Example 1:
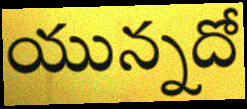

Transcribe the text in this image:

యున్నదో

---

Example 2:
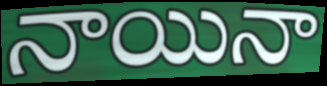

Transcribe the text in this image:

నాయినా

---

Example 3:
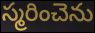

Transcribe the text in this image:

స్మరించెను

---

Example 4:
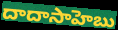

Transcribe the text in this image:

దాదాసాహెబు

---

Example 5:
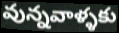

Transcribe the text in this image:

వున్నవాళ్ళకు